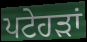
ਪਟੇਹੜਾਂ